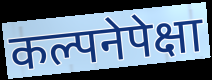
कल्पनेपेक्षा